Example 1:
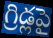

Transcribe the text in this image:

గ్రిడ్లపై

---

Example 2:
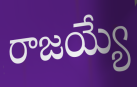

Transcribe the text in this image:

రాజయ్యే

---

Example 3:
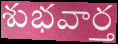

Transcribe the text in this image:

శుభవార్త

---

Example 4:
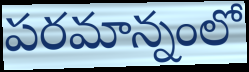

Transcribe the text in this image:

పరమాన్నంలో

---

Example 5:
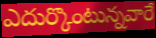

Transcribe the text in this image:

ఎదుర్కొంటున్నవారే